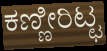
ಕಣ್ಣೀರಿಟ್ಟ